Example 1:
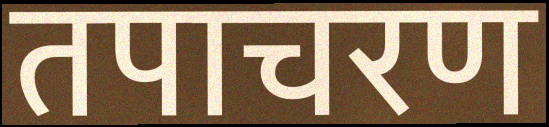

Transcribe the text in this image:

तपाचरण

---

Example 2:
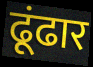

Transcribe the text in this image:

ढूंढार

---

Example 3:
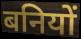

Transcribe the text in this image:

बनियों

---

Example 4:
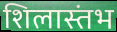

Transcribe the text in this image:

शिलास्तंभ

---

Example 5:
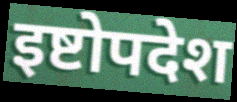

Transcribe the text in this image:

इष्टोपदेश